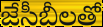
జేసీబీలతో